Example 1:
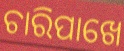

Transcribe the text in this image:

ଚାରିପାଖେ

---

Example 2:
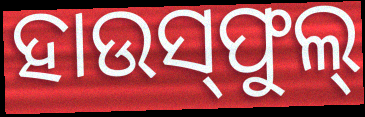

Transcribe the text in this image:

ହାଉସ୍‌ଫୁଲ୍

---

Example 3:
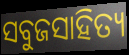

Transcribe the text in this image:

ସବୁଜସାହିତ୍ୟ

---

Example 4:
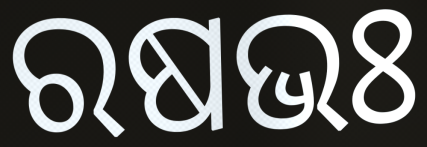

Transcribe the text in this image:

ରଷଭଃ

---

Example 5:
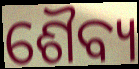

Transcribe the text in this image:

ଶୈବ୍ୟ